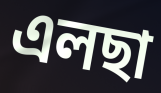
এলছা